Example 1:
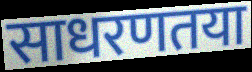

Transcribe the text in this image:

साधरणतया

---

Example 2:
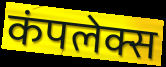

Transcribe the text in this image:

कंपलेक्स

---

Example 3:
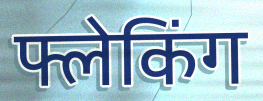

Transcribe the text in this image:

फ्लेकिंग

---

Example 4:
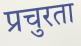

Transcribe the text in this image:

प्रचुरता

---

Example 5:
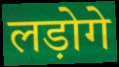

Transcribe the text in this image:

लड़ोगे